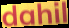
dahil